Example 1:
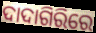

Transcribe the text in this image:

ଦାଦାଗିରିରେ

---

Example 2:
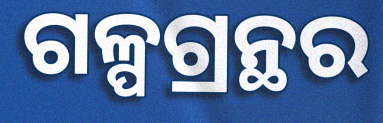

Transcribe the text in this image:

ଗଳ୍ପଗ୍ରନ୍ଥର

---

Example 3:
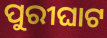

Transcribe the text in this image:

ପୁରୀଘାଟ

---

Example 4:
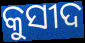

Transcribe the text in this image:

କୁସୀଦ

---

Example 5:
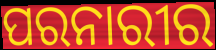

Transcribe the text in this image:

ପରନାରୀର